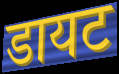
डायट